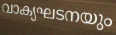
വാക്യഘടനയും